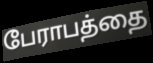
பேராபத்தை